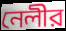
নেলীর